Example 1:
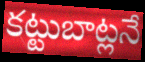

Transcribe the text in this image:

కట్టుబాట్లనే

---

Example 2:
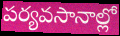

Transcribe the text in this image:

పర్యవసానాల్లో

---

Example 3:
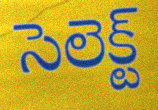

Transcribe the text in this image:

సెలెక్ట్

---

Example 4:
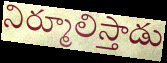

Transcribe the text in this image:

నిర్మూలిస్తాడు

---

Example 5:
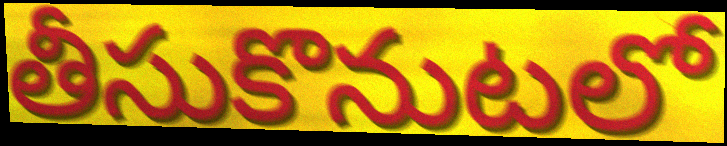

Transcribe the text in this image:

తీసుకొనుటలో